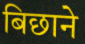
बिछाने